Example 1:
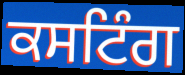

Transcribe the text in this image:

ਕਸਟਿੰਗ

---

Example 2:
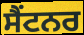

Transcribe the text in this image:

ਸੈਂਟਨਰ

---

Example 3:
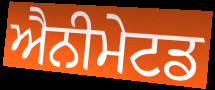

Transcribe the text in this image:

ਐਨੀਮੇਟਡ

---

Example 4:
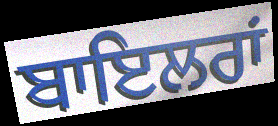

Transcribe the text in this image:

ਬਾਇਲਰਾਂ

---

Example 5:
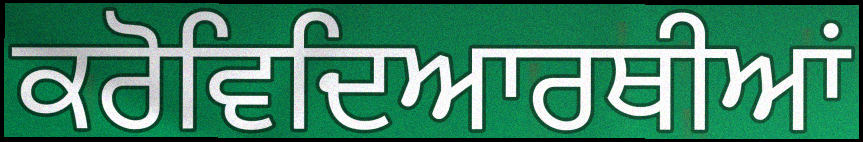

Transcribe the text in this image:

ਕਰੋਵਿਦਿਆਰਥੀਆਂ